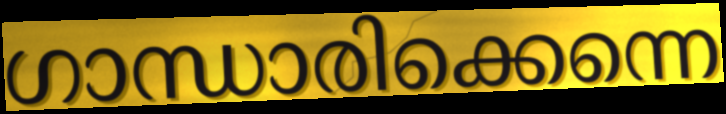
ഗാന്ധാരിക്കെന്നെ